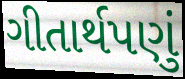
ગીતાર્થપણું